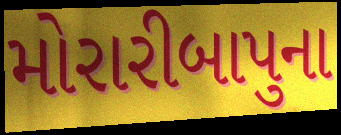
મોરારીબાપુના